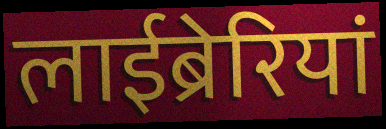
लाईब्रेरियां